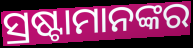
ସ୍ରଷ୍ଟାମାନଙ୍କର